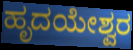
ಹೃದಯೇಶ್ವರ